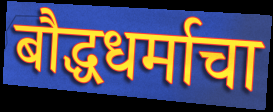
बौद्धधर्माचा